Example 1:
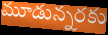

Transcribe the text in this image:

మూడున్నరకు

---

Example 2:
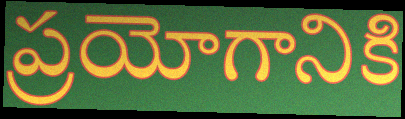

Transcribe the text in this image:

ప్రయోగానికి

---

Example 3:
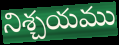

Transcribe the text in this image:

నిశ్చయము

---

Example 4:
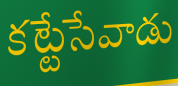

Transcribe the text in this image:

కట్టేసేవాడు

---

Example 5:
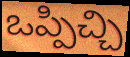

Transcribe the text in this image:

ఒప్పిచ్చి